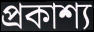
প্রকাশ্য